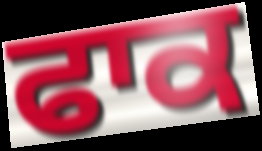
ਫਾਕ